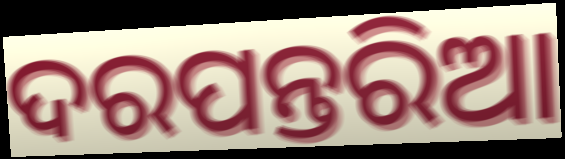
ଦରପନ୍ତରିଆ